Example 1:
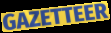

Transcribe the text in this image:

GAZETTEER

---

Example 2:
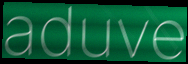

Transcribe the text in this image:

aduve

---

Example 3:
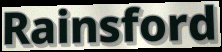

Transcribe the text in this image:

Rainsford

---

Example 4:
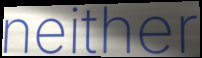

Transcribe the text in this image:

neither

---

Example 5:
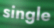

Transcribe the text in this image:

single